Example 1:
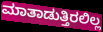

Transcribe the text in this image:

ಮಾತಾಡುತ್ತಿರಲಿಲ್ಲ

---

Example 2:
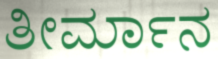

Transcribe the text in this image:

ತೀರ್ಮಾನ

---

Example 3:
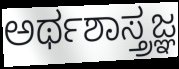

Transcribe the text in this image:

ಅರ್ಥಶಾಸ್ತ್ರಜ್ಞ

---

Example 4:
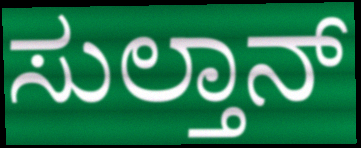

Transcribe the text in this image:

ಸುಲ್ತಾನ್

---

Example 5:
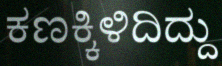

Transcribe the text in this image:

ಕಣಕ್ಕಿಳಿದಿದ್ದು